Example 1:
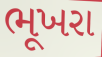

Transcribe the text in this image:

ભૂખરા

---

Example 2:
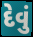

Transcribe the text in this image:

દેવું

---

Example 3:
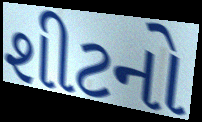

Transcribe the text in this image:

શીટનો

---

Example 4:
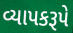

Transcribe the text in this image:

વ્યાપકરૂપે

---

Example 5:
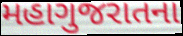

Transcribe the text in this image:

મહાગુજરાતના